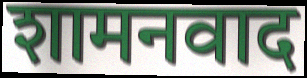
शामनवाद